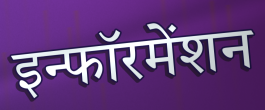
इन्फॉरमेंशन